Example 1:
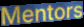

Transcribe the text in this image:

Mentors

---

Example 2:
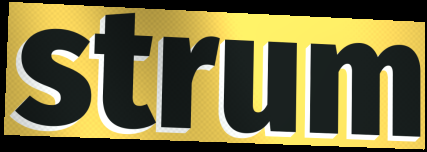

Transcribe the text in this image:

strum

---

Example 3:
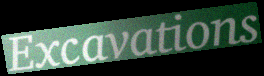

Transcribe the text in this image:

Excavations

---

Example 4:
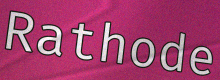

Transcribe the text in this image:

Rathode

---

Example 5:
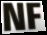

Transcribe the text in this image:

NF